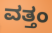
ವತ್ತಂ